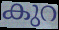
കുറ